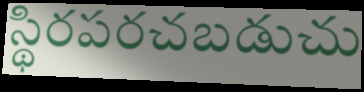
స్థిరపరచబడుచు